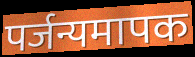
पर्जन्यमापक